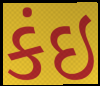
કંઇ